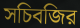
সচিবজির